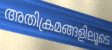
അതിക്രമങ്ങളിലൂടെ